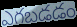
ఎగబడడం